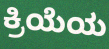
ಕ್ರಿಯೆಯ